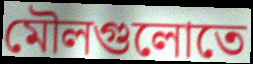
মৌলগুলোতে